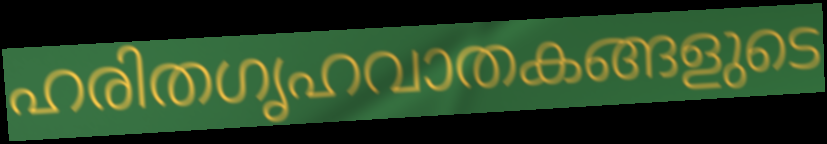
ഹരിതഗൃഹവാതകങ്ങളുടെ